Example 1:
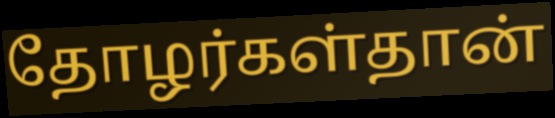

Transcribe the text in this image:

தோழர்கள்தான்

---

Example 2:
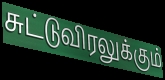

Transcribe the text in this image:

சுட்டுவிரலுக்கும்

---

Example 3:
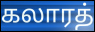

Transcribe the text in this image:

கலாரத்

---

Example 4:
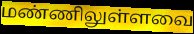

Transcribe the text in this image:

மண்ணிலுள்ளவை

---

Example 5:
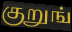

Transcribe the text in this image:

குறுங்